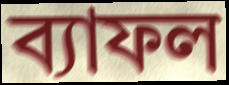
ব্যাফল